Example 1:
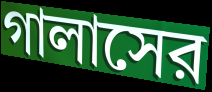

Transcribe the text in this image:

গালাসের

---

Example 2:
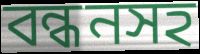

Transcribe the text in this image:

বন্ধনসহ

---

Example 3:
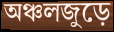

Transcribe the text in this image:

অঞ্চলজুড়ে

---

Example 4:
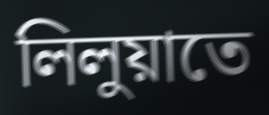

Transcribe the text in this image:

লিলুয়াতে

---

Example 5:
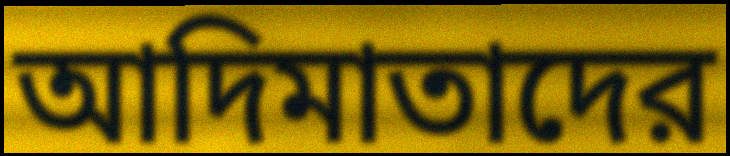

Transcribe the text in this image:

আদিমাতাদের